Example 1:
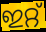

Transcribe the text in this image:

ഇറ്റ്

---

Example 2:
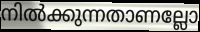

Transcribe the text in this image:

നിൽക്കുന്നതാണല്ലോ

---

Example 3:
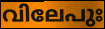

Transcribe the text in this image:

വിലേപുഃ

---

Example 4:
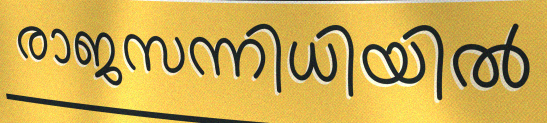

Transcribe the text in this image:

രാജസന്നിധിയിൽ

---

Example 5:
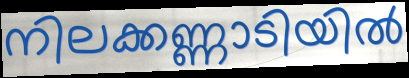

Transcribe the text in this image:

നിലക്കണ്ണാടിയിൽ